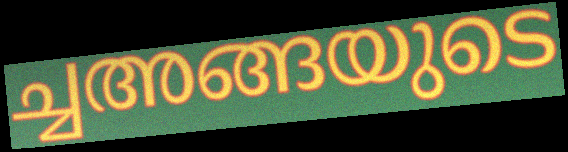
ച്ചഅങ്ങയുടെ